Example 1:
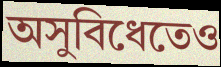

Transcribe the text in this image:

অসুবিধেতেও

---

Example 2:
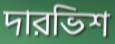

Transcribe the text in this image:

দারভিশ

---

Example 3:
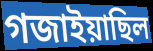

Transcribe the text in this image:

গজাইয়াছিল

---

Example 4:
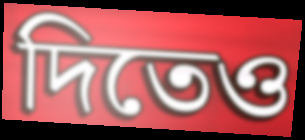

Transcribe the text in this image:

দিতেও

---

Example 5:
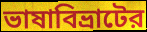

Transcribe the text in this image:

ভাষাবিভ্রাটের